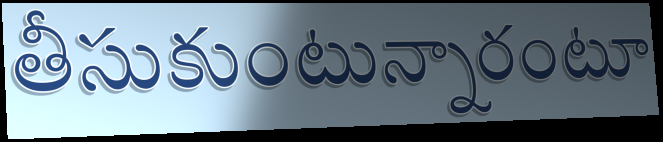
తీసుకుంటున్నారంటూ